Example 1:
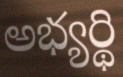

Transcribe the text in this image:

అభ్యర్థి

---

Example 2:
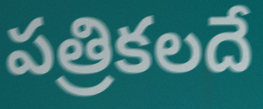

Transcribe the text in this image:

పత్రికలదే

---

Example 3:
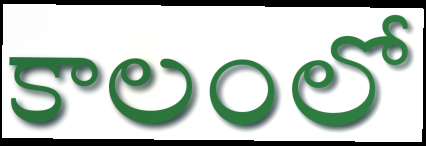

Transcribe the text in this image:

కాలంలో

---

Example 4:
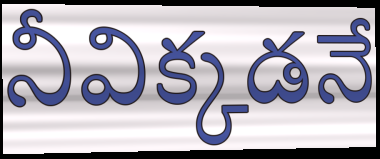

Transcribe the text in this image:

నీవిక్కడనే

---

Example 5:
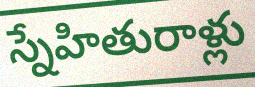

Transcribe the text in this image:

స్నేహితురాళ్లు